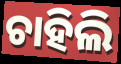
ଚାହିଲି